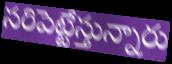
సరిపెట్టేస్తున్నారు